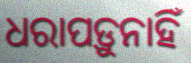
ଧରାପଡ଼ୁନାହିଁ